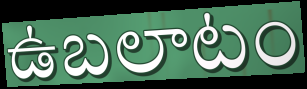
ఉబలాటం